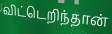
விட்டெறிந்தான்